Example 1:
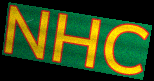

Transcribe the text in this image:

NHC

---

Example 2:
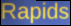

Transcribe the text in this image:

Rapids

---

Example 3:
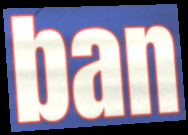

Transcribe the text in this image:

ban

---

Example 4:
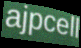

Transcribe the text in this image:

ajpcell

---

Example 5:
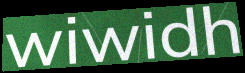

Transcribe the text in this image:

wiwidh